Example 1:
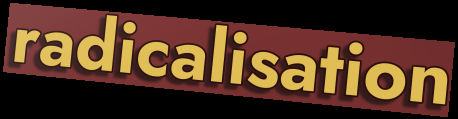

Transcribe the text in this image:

radicalisation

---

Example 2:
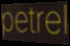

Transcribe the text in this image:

petrel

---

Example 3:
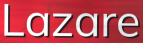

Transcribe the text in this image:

Lazare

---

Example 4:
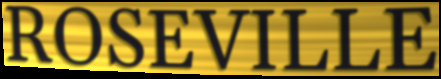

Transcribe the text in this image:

ROSEVILLE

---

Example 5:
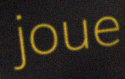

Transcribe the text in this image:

joue